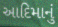
આદિમાનું